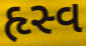
હૃસ્વ